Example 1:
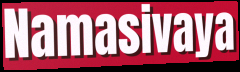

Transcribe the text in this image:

Namasivaya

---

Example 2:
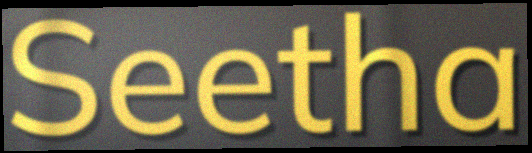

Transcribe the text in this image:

Seetha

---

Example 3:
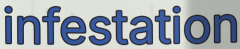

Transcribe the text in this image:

infestation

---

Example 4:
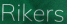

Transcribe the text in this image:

Rikers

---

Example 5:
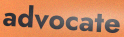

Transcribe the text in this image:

advocate